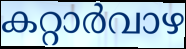
കറ്റാർവാഴ